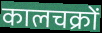
कालचक्रों